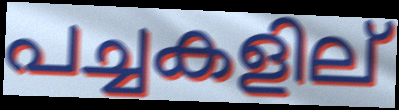
പച്ചകളില്